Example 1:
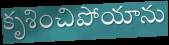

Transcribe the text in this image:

కృశించిపోయాను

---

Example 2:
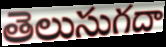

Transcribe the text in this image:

తెలుసుగదా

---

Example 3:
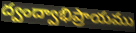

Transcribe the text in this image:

ద్వంద్వాభిప్రాయము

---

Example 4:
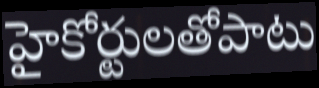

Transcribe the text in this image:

హైకోర్టులతోపాటు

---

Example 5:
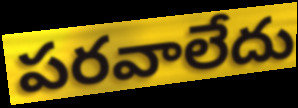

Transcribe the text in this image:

పరవాలేదు